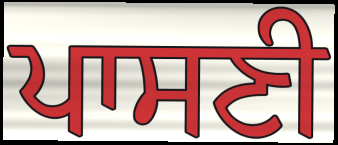
ਪਾਸਣੀ